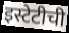
इस्टेटीची